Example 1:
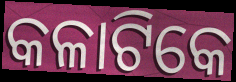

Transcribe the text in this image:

କଳାଟିକେ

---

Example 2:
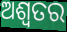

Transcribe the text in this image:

ଅଶ୍ୱତର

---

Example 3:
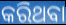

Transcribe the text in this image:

କରିଥବା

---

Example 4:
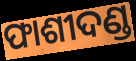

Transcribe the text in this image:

ଫାଶୀଦଣ୍ଡ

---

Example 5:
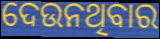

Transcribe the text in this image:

ଦେଉନଥିବାର